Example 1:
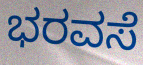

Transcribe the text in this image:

ಭರವಸೆ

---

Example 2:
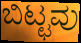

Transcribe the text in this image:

ಬಿಟ್ಟವು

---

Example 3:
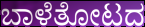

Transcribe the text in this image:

ಬಾಳೆತೋಟದ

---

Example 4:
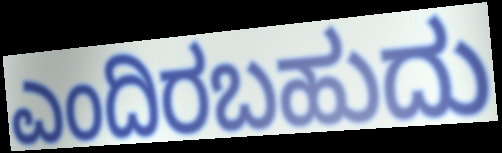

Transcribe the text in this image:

ಎಂದಿರಬಹುದು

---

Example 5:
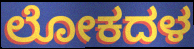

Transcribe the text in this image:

ಲೋಕದಳ